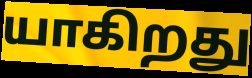
யாகிறது